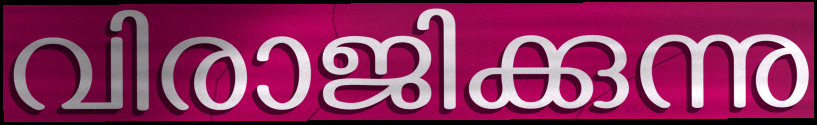
വിരാജിക്കുന്നു